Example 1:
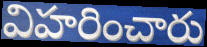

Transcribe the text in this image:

విహరించారు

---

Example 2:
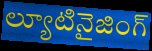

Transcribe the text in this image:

ల్యూటినైజింగ్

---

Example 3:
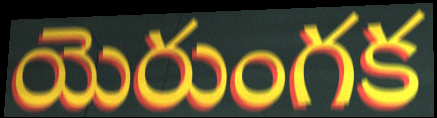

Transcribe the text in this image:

యెరుంగక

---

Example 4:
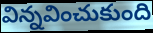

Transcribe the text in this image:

విన్నవించుకుంది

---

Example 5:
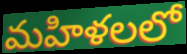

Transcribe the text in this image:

మహిళలలో